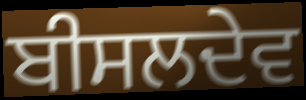
ਬੀਸਲਦੇਵ